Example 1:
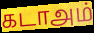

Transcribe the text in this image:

கடாஅம்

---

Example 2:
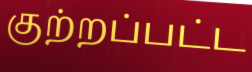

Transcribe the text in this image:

குற்றப்பட்ட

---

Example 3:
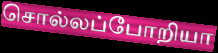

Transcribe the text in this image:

சொல்லப்போறியா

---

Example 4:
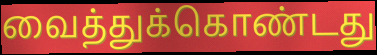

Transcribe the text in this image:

வைத்துக்கொண்டது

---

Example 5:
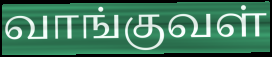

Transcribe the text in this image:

வாங்குவள்